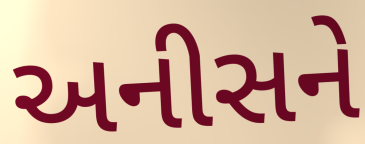
અનીસને